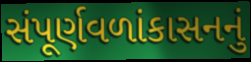
સંપૂર્ણવળાંકાસનનું